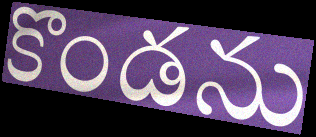
కొండను